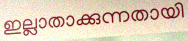
ഇല്ലാതാക്കുന്നതായി